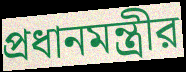
প্রধানমন্ত্রীর